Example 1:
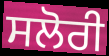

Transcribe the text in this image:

ਸਲੋਰੀ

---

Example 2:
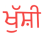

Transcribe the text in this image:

ਖੁੱਸ਼ੀ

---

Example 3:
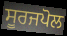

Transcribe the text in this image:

ਸੂਰਜਪੋਲ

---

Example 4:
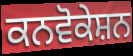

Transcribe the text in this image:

ਕਨਵੋਕੇਸ਼ਨ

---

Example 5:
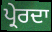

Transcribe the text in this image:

ਪ੍ਰੇਰਦਾ